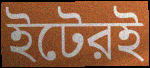
ইটেরই